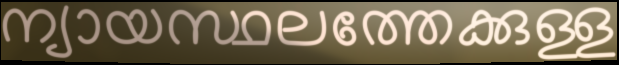
ന്യായസ്ഥലത്തേക്കുള്ള